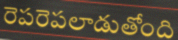
రెపరెపలాడుతోంది